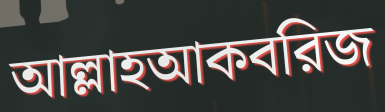
আল্লাহআকবরিজ